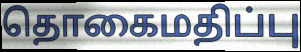
தொகைமதிப்பு